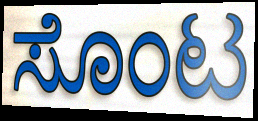
ಸೊಂಟ